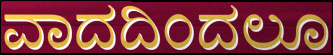
ವಾದದಿಂದಲೂ